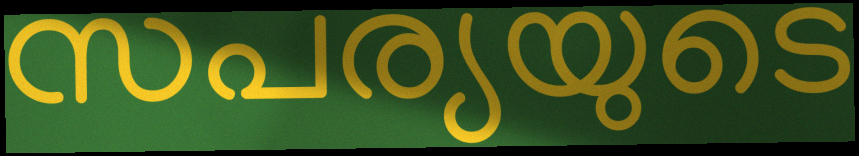
സപര്യയുടെ